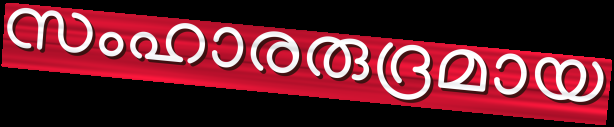
സംഹാരരുദ്രമായ